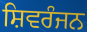
ਸ਼ਿਵਰੰਜਨ